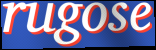
rugose